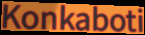
Konkaboti